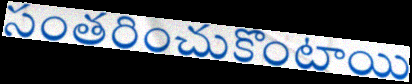
సంతరించుకొంటాయి